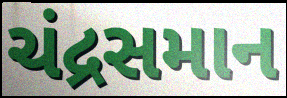
ચંદ્રસમાન